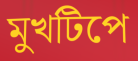
মুখটিপে